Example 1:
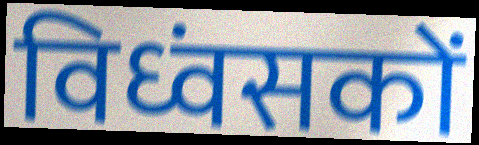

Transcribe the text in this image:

विध्वंसकों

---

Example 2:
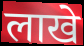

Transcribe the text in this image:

लाखे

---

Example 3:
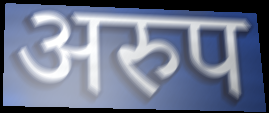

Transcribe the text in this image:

अरुप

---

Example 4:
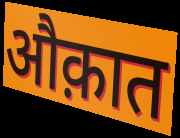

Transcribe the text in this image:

औक़ात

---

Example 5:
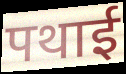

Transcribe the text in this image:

पथाई